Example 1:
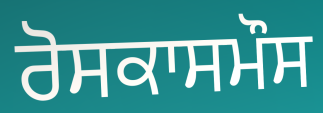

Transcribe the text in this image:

ਰੋਸਕਾਸਮੌਸ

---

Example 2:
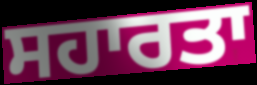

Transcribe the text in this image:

ਸਹਾਰਤਾ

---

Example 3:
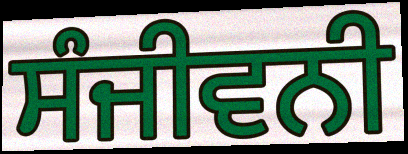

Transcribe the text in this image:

ਸੰਜੀਵਨੀ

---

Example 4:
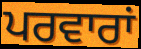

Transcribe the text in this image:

ਪਰਵਾਰਾਂ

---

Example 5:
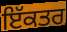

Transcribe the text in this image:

ਇੱਕਤਰ